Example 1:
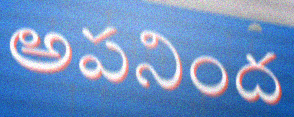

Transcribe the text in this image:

అపనింద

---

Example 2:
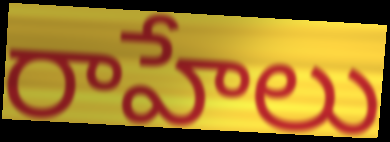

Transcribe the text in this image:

రాహేలు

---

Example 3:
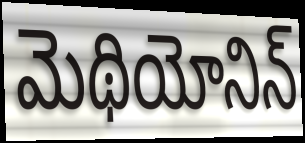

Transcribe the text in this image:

మెథియోనిన్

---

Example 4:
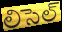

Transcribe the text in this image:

లిసెల్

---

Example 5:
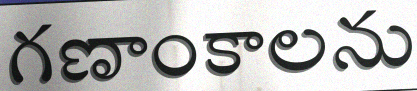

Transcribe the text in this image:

గణాంకాలను